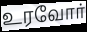
உரவோர்